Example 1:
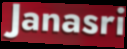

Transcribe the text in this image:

Janasri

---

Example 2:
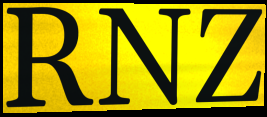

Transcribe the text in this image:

RNZ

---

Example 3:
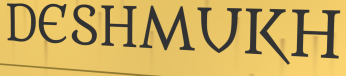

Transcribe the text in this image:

DESHMUKH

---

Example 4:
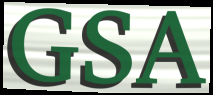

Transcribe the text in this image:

GSA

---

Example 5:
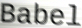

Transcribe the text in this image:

Babel